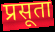
प्रसूता